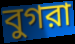
বুগরা